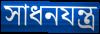
সাধনযন্ত্র